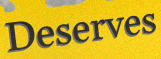
Deserves